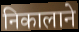
निकालाने